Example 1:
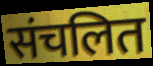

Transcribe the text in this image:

संचलित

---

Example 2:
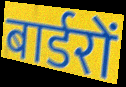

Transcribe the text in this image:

बार्डरों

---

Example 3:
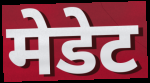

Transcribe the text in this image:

मेडेट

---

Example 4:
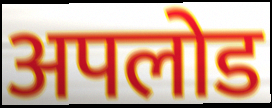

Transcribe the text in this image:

अपलोड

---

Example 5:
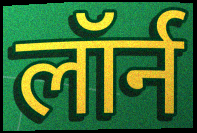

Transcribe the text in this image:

लॉर्न